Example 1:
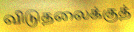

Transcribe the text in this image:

விடுதலைக்குத்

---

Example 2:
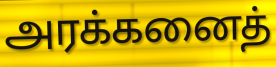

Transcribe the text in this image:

அரக்கனைத்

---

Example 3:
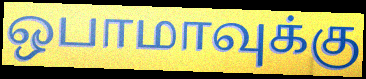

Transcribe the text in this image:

ஒபாமாவுக்கு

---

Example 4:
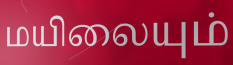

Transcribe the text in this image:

மயிலையும்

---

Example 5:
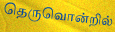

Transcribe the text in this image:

தெருவொன்றில்